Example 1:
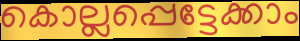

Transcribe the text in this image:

കൊല്ലപ്പെട്ടേക്കാം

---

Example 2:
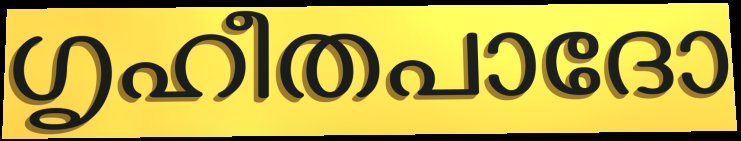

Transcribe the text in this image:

ഗൃഹീതപാദോ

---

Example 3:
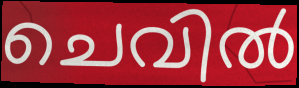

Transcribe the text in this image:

ചെവിൽ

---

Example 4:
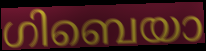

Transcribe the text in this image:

ഗിബെയാ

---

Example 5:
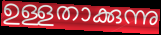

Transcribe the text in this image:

ഉള്ളതാക്കുന്നു